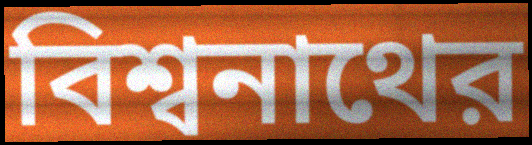
বিশ্বনাথের